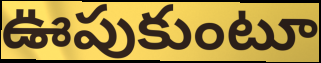
ఊపుకుంటూ